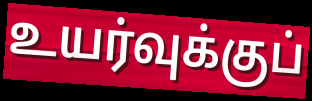
உயர்வுக்குப்